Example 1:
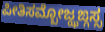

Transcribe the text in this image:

ಪೀತಿಸಮ್ಬೋಜ್ಝಙ್ಗಸ್ಸ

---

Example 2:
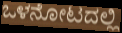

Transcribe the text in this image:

ಒಳನೋಟದಲ್ಲಿ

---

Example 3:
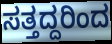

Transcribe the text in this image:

ಸತ್ತದ್ದರಿಂದ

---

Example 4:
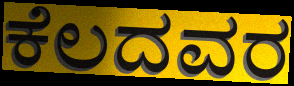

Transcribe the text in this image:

ಕೆಲದವರ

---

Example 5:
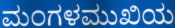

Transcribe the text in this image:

ಮಂಗಳಮುಖಿಯ